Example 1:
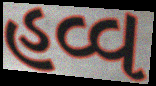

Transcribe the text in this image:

હવ્વ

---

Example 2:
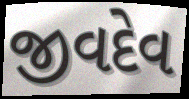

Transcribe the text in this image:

જીવદેવ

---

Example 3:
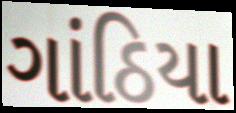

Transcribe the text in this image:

ગાંઠિયા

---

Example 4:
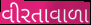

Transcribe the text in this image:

વીરતાવાળા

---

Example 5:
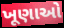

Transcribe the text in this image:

ખૂણાઓ